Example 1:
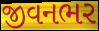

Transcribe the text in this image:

જીવનભર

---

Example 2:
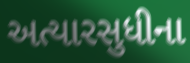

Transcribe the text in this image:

અત્યારસુધીના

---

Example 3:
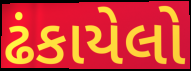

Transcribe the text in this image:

ઢંકાયેલો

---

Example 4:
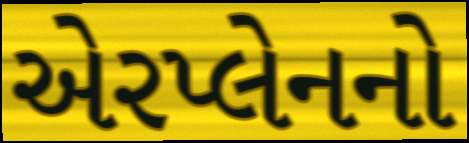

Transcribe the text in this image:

એરપ્લેનનો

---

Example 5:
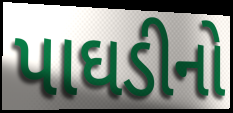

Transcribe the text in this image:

પાઘડીનો